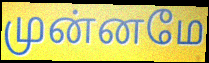
முன்னமே